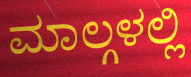
ಮಾಲ್ಗಳಲ್ಲಿ